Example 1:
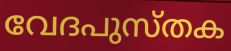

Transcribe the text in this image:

വേദപുസ്തക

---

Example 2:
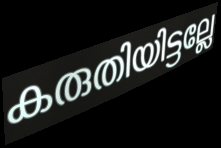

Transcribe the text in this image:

കരുതിയിട്ടല്ലേ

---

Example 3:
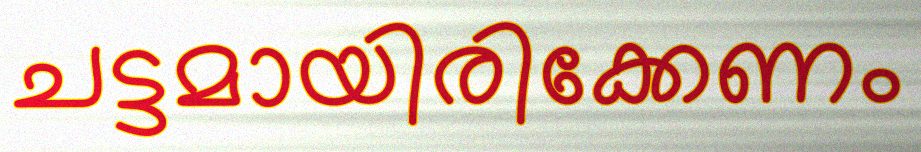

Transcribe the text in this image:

ചട്ടമായിരിക്കേണം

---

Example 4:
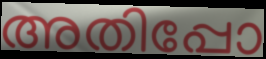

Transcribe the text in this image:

അതിപ്പോ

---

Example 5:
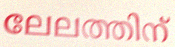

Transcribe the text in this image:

ലേലത്തിന്